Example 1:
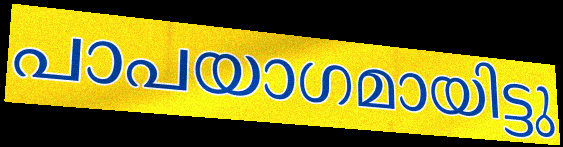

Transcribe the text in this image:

പാപയാഗമായിട്ടു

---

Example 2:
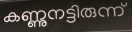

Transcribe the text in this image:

കണ്ണുനട്ടിരുന്ന്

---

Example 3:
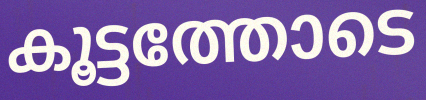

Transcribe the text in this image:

കൂട്ടത്തോടെ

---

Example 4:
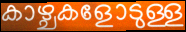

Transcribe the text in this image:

കാഴ്ചകളോടുള്ള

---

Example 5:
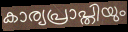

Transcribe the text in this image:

കാര്യപ്രാപ്തിയും